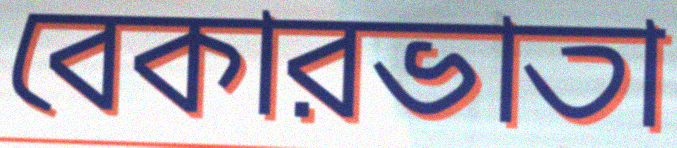
বেকারভাতা